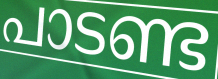
പാടണ്ട